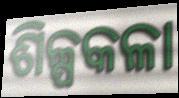
ଶିଳ୍ପକଳା